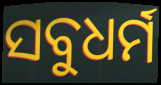
ସବୁଧର୍ମ